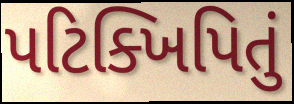
પટિક્ખિપિતું